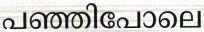
പഞ്ഞിപോലെ